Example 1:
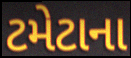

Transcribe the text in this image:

ટમેટાના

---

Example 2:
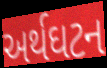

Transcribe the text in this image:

અર્થઘટન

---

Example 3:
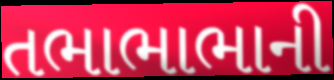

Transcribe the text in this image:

તભાભાભાની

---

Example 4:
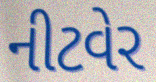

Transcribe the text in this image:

નીટવેર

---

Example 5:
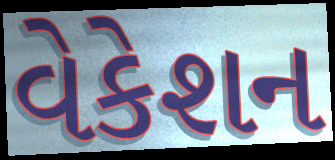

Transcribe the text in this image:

વેકેશન